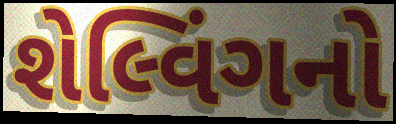
શેલ્વિંગનો